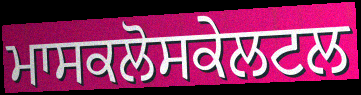
ਮਾਸਕਲੋਸਕੇਲਟਲ